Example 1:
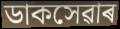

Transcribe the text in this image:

ডাকসেৱাৰ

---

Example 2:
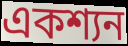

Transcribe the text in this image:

একশ্যন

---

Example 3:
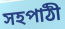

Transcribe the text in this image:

সহপাঠী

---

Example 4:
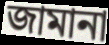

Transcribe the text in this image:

জামানা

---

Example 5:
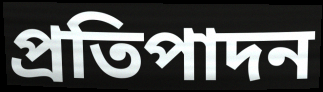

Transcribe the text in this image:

প্ৰতিপাদন